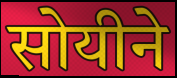
सोयीने